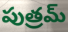
పుత్రమ్